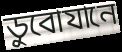
ডুবোযানে